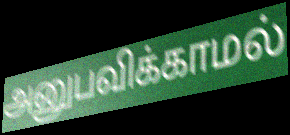
அனுபவிக்காமல்